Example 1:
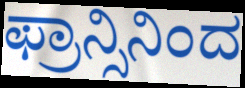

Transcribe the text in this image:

ಫ್ರಾನ್ಸಿನಿಂದ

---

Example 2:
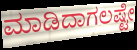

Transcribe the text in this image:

ಮಾಡಿದಾಗಲಷ್ಟೇ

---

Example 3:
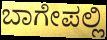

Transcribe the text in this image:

ಬಾಗೇಪಲ್ಲಿ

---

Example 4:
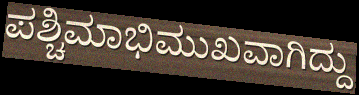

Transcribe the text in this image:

ಪಶ್ಚಿಮಾಭಿಮುಖವಾಗಿದ್ದು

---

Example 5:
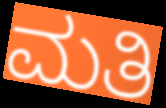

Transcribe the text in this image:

ಮತಿ